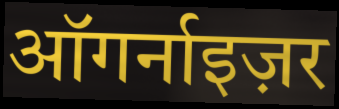
ऑगर्नाइज़र